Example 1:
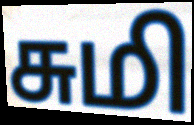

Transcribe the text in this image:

சுமி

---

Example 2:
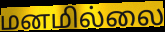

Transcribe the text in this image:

மனமில்லை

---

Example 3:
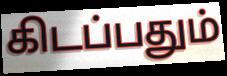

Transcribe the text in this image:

கிடப்பதும்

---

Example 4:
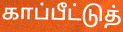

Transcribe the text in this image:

காப்பீட்டுத்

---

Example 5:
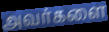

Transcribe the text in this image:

அவர்களை